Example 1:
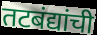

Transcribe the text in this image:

तटबंद्यांची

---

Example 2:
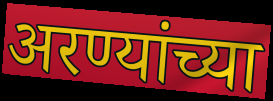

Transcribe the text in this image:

अरण्यांच्या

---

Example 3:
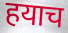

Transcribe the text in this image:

हयाच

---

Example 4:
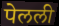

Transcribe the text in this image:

पेलली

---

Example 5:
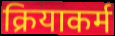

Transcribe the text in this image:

क्रियाकर्म